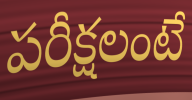
పరీక్షలంటే